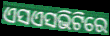
ଏସଏସଭିଟିରେ